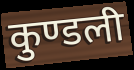
कुण्डली